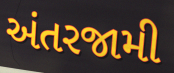
અંતરજામી